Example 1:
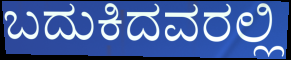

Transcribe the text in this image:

ಬದುಕಿದವರಲ್ಲಿ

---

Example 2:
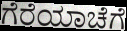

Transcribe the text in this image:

ಗೆರೆಯಾಚೆಗೆ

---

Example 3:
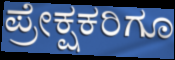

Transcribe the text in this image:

ಪ್ರೇಕ್ಷಕರಿಗೂ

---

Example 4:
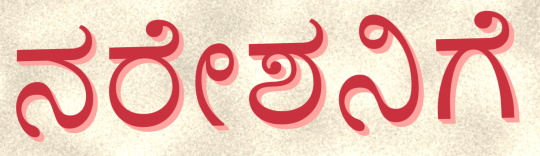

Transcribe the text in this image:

ನರೇಶನಿಗೆ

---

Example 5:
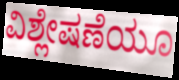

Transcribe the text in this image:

ವಿಶ್ಲೇಷಣೆಯೂ